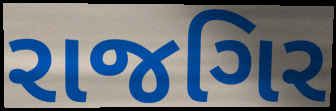
રાજગિર